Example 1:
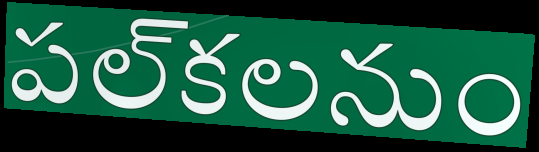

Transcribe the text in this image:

పల్‌కలనుం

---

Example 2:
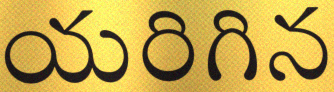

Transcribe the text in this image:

యరిగిన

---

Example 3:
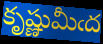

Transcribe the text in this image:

కృష్ణుమీఁద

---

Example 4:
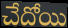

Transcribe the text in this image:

చేదోయి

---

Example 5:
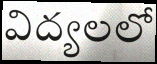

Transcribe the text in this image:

విద్యలలో